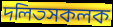
দলিতসকলক